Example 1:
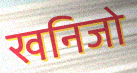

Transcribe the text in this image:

खनिजो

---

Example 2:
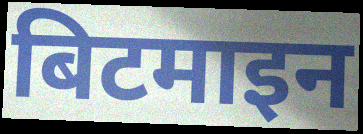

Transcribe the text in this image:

बिटमाइन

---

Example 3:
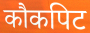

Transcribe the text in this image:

कौकपिट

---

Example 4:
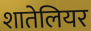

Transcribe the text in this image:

शातेलियर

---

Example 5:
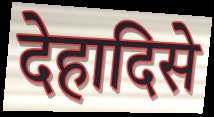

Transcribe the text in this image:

देहादिसे